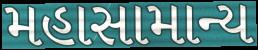
મહાસામાન્ય